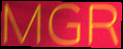
MGR